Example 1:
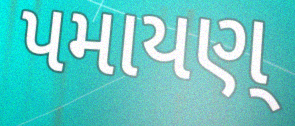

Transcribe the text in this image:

પમાયણ્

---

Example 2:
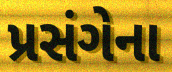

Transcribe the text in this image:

પ્રસંગેના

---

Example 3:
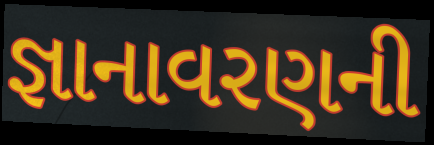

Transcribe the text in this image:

જ્ઞાનાવરણની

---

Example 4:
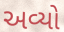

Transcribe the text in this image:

અવ્યો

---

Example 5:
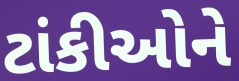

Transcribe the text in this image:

ટાંકીઓને